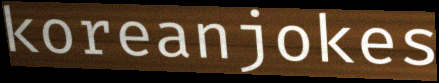
koreanjokes